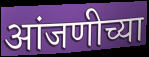
आंजणीच्या